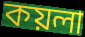
কয়লা